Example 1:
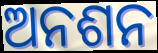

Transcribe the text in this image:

ଅନଶନ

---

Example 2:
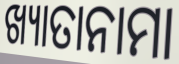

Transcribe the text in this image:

ଖ୍ୟାତାନାମା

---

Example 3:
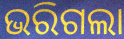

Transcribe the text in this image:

ଭରିଗଲା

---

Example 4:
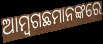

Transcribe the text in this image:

ଆମ୍ବଗଛମାନଙ୍କରେ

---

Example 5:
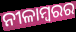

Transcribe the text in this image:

ନୀଳାମ୍ବରର